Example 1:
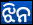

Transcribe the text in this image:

ଝିନ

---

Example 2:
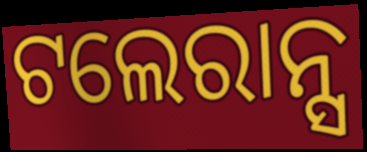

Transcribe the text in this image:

ଟଲେରାନ୍ସ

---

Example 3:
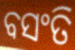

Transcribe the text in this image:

ବସଂତି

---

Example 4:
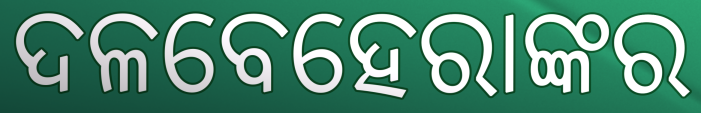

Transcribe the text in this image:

ଦଳବେହେରାଙ୍କର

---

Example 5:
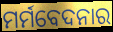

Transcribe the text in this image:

ମର୍ମବେଦନାର